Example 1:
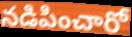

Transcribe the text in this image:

నడిపించారో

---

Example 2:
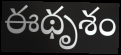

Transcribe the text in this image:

ఈథృశం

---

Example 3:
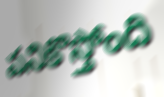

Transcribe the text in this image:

పనికొస్తోంది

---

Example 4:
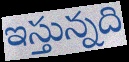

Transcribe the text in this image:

ఇస్తున్నది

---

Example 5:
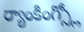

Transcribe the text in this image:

ర్యాంకింగ్స్లో